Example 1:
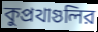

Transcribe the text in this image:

কুপ্রথাগুলির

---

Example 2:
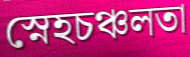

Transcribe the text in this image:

স্নেহচঞ্চলতা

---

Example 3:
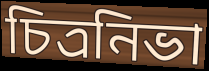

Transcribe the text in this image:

চিত্রনিভা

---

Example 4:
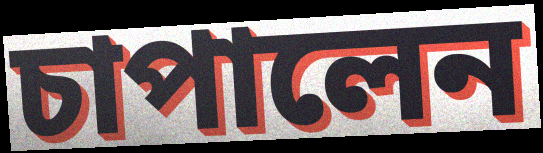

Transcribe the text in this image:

চাপালেন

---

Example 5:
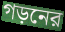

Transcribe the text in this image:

গড়নের